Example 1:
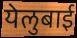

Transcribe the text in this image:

येलुबाई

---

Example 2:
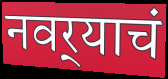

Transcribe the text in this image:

नवर्याचं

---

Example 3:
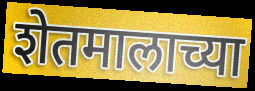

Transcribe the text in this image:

शेतमालाच्या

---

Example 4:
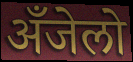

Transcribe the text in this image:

अँजेलो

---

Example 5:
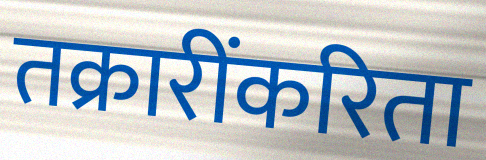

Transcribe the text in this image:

तक्रारींकरिता